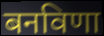
बनविणा